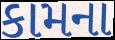
કામના